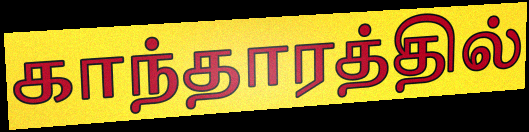
காந்தாரத்தில்